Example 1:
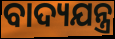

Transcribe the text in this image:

ବାଦ୍ୟଯନ୍ତ୍ର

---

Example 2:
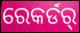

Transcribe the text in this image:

ରେକର୍ଡର୍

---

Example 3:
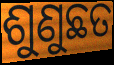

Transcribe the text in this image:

ଶୁଣୁଛତ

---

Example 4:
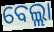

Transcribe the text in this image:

ବେଲ୍ଲା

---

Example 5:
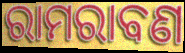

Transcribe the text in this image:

ରାମରାବଣ